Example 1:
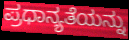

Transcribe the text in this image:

ಪ್ರಧಾನ್ಯತೆಯನ್ನು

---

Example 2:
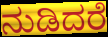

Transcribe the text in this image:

ನುಡಿದರೆ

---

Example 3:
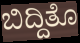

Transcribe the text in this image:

ಬಿದ್ದಿತೊ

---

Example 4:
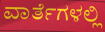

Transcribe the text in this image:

ವಾರ್ತೆಗಳಲ್ಲಿ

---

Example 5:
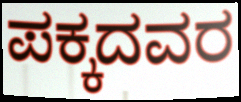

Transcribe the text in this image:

ಪಕ್ಕದವರ